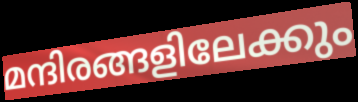
മന്ദിരങ്ങളിലേക്കും